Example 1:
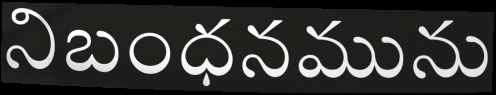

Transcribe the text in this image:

నిబంధనమును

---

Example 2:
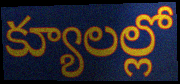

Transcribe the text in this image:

క్యూలల్లో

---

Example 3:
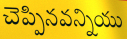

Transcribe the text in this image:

చెప్పినవన్నియు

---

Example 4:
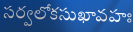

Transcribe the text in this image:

సర్వలోకసుఖావహః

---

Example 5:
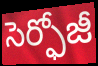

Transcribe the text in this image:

సెర్ఫోజీ